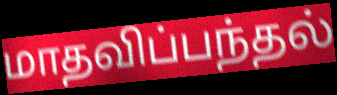
மாதவிப்பந்தல்